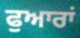
ਫੁਆਰਾਂ